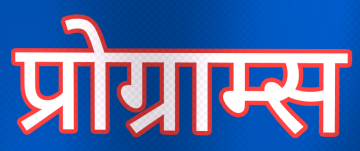
प्रोग्राम्स